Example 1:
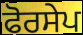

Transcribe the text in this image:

ਫੋਰਸੇਪ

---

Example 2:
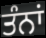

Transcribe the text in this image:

ਤੰਨਾਂ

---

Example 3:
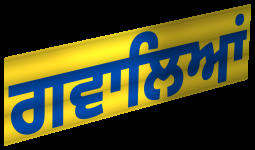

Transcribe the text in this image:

ਗਵਾਲਿਆਂ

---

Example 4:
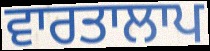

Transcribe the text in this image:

ਵਾਰਤਾਲਾਪ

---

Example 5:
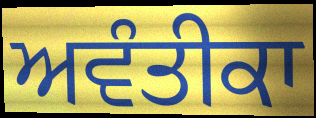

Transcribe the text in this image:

ਅਵੰਤੀਕਾ